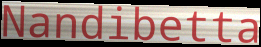
Nandibetta